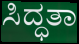
ಸಿದ್ಧತಾ